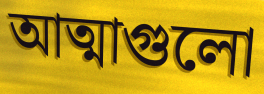
আত্মাগুলো